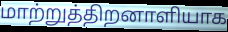
மாற்றுத்திறனாளியாக